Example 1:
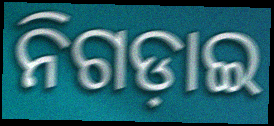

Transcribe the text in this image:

ନିଗଡ଼ାଇ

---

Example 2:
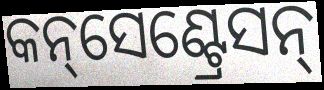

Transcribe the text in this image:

କନ୍‌ସେଣ୍ଟ୍ରେସନ୍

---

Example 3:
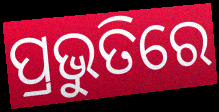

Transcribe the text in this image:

ପ୍ରଭୁତିରେ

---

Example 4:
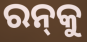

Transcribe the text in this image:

ରନ୍‌କୁ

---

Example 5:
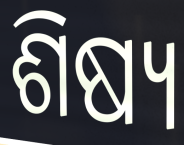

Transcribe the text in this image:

ଶିଷ୍ଯ